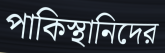
পাকিস্থানিদের